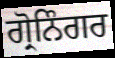
ਗ੍ਰੋਨਿੰਗਰ